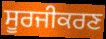
ਸੂਰਜੀਕਰਣ